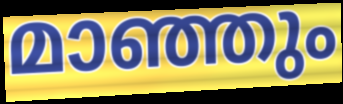
മാഞ്ഞും